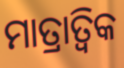
ମାତ୍ରାତ୍ଵିକ